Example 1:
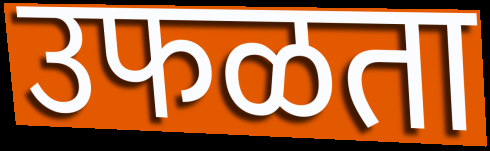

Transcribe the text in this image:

उफळता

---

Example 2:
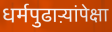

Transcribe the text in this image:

धर्मपुढाऱ्‍यांपेक्षा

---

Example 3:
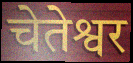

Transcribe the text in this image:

चेतेश्वर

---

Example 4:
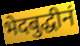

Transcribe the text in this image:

भेदबुद्धीनं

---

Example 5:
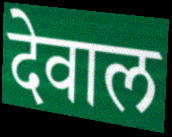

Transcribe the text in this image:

देवाल